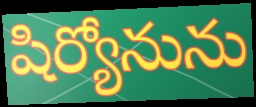
షిర్యోనును